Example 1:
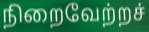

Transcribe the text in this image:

நிறைவேற்றச்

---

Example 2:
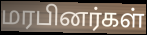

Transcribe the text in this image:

மரபினர்கள்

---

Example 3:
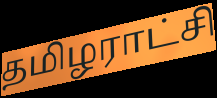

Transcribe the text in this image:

தமிழராட்சி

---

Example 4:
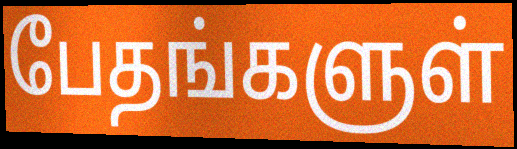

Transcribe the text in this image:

பேதங்களுள்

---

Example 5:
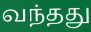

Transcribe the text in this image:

வந்தது